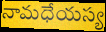
నామధేయస్య